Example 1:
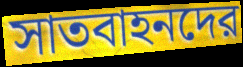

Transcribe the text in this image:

সাতবাহনদের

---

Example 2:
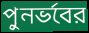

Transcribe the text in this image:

পুনর্ভবের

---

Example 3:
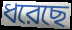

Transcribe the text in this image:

ধরেছে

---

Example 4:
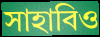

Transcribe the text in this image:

সাহাবিও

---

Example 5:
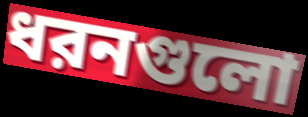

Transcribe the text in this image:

ধরনগুলো